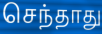
செந்தாது